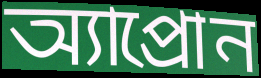
অ্যাপ্রোন